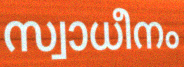
സ്വാധീനം